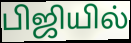
பிஜியில்